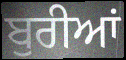
ਬੁਰੀਆਂ